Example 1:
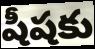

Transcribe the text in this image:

షీషకు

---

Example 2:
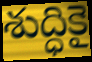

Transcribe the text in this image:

శుద్ధికై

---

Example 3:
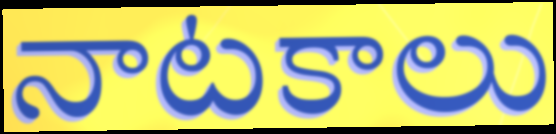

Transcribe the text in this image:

నాటకాలు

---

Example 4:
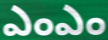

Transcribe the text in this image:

ఎంఎం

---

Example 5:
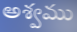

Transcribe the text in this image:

అశ్వము